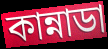
কান্নাডা